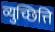
व्युच्छित्ति